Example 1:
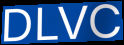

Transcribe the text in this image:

DLVC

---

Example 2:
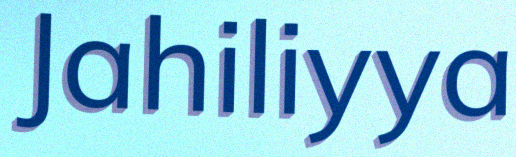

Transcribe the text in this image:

Jahiliyya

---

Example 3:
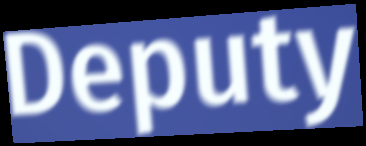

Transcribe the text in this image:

Deputy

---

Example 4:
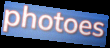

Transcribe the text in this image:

photoes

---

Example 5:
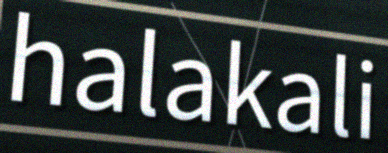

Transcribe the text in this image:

halakali